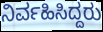
ನಿರ್ವಹಿಸಿದ್ದರು